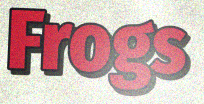
Frogs